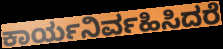
ಕಾರ್ಯನಿರ್ವಹಿಸಿದರೆ